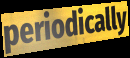
periodically